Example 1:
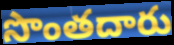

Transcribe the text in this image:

సొంతదారు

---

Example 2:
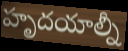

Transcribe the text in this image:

హృదయాల్నీ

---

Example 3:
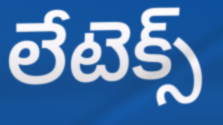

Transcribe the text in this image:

లేటెక్స్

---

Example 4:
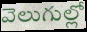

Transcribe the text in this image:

వెలుగుల్లో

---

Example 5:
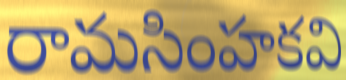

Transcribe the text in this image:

రామసింహకవి